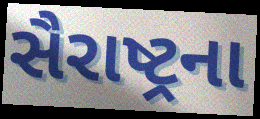
સૈરાષ્ટ્રના